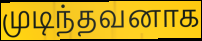
முடிந்தவனாக